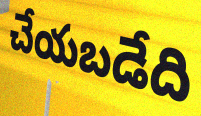
చేయబడేది